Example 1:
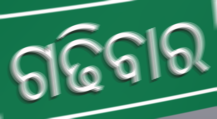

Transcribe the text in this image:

ଗଢିବାର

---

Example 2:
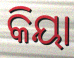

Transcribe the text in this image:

କିୟା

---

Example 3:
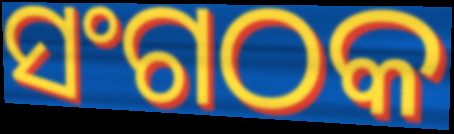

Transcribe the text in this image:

ସଂଗଠକ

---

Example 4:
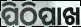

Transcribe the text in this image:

ପିଠିପାଖ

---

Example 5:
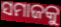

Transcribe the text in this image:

ସମାଜକୁ